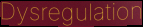
Dysregulation